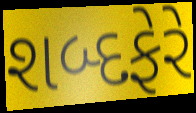
શબ્દફેરે